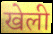
खेली